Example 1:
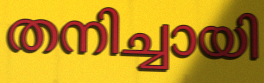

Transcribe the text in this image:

തനിച്ചായി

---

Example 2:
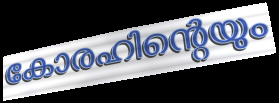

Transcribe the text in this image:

കോരഹിന്റെയും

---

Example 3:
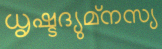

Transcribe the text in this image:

ധൃഷ്ടദ്യുമ്നസ്യ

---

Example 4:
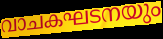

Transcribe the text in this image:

വാചകഘടനയും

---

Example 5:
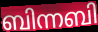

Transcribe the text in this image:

ബിന്നബി